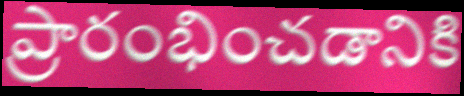
ప్రారంభించడానికి